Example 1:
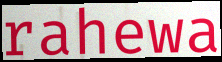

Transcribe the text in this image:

rahewa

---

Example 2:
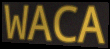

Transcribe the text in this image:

WACA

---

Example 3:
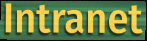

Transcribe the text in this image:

Intranet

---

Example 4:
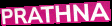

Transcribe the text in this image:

PRATHNA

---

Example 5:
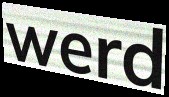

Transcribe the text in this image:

werd